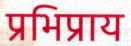
प्रभिप्राय